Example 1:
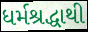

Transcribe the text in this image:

ધર્મશ્રદ્ધાથી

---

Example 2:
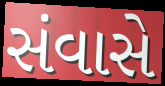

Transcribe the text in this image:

સંવાસે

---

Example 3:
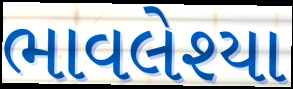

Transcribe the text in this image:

ભાવલેશ્યા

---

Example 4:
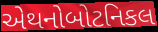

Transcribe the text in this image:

એથનોબોટનિકલ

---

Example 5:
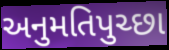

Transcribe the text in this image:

અનુમતિપુચ્છા